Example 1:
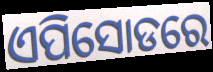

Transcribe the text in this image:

ଏପିସୋଡରେ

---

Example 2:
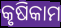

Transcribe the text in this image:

କୃଷିକାମ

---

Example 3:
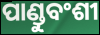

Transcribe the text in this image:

ପାଣ୍ଡୁବଂଶୀ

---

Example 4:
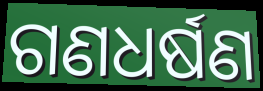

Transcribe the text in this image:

ଗଣଧର୍ଷଣ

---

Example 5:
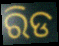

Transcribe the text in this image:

ରିଡ